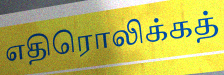
எதிரொலிக்கத்